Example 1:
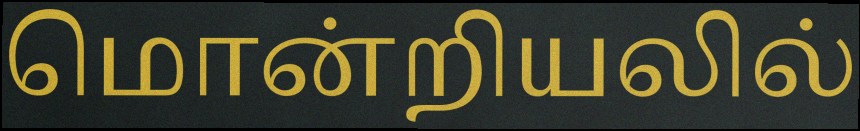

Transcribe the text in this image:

மொன்றியலில்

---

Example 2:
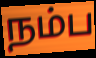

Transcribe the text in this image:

நம்ப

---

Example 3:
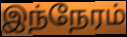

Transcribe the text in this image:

இந்நேரம்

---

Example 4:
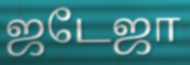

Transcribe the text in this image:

ஜடேஜா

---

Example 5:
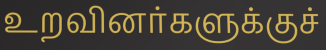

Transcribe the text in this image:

உறவினர்களுக்குச்